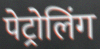
पेट्रोलिंग